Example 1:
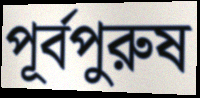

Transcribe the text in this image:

পূর্বপুরুষ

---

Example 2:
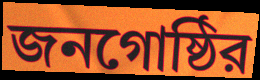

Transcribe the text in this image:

জনগোষ্ঠির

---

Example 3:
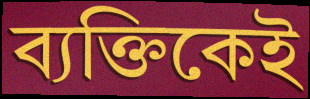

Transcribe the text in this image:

ব্যক্তিকেই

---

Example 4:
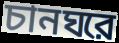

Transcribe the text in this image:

চানঘরে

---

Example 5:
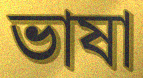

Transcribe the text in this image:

ভাষা